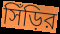
সিঁড়ির